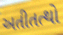
અતીતત્થો